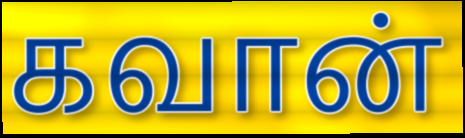
கவான்